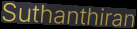
Suthanthiran